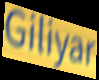
Giliyar